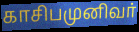
காசிபமுனிவர்